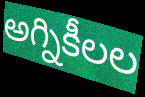
అగ్నికీలల